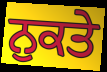
ਨੁਕਤੇ